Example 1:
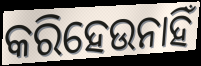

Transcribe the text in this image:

କରିହେଉନାହିଁ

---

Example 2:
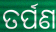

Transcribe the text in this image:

ତର୍ପଣ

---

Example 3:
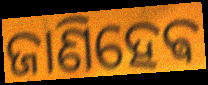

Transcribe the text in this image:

ଜାଣିହେଵ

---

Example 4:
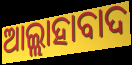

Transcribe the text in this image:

ଆଲ୍ଲାହାବାଦ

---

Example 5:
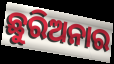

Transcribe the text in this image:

ଛୁରିଅନାର